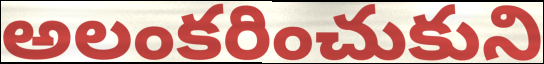
అలంకరించుకుని